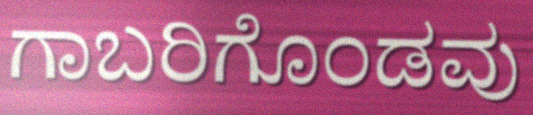
ಗಾಬರಿಗೊಂಡವು